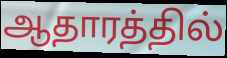
ஆதாரத்தில்